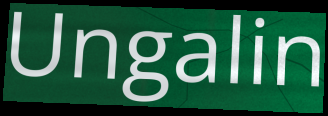
Ungalin